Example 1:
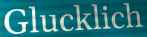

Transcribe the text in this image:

Glucklich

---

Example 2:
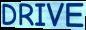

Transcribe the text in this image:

DRIVE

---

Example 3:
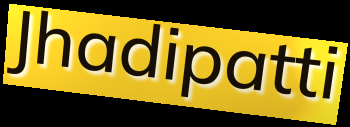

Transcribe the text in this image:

Jhadipatti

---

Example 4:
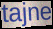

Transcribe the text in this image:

tajne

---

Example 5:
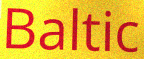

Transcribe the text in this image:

Baltic